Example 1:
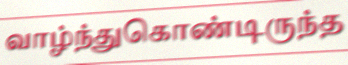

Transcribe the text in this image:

வாழ்ந்துகொண்டிருந்த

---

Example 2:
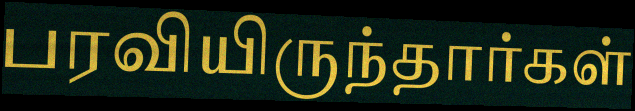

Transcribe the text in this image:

பரவியிருந்தார்கள்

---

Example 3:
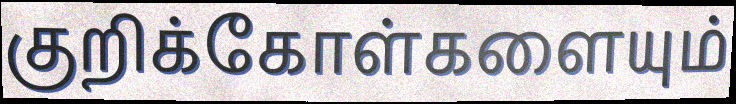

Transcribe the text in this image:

குறிக்கோள்களையும்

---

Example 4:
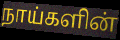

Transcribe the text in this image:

நாய்களின்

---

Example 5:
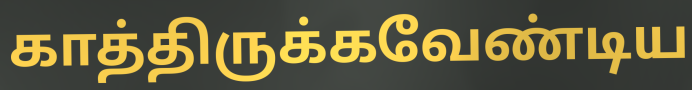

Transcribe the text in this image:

காத்திருக்கவேண்டிய